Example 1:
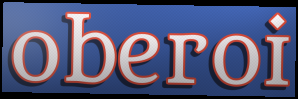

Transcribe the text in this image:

oberoi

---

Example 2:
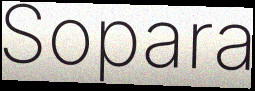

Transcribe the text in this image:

Sopara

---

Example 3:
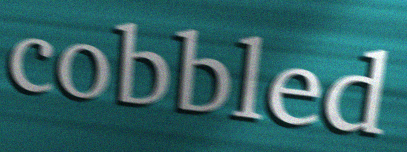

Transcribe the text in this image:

cobbled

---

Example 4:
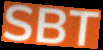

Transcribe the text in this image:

SBT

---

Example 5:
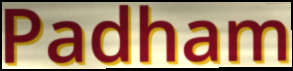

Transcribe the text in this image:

Padham